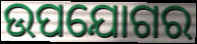
ଉପଯୋଗର